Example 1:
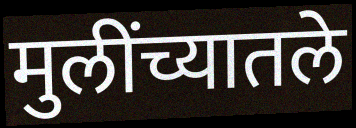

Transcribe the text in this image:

मुलींच्यातले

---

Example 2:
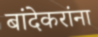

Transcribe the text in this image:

बांदेकरांना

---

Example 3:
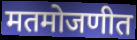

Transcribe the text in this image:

मतमोजणीत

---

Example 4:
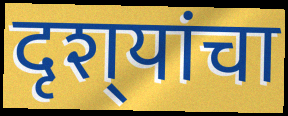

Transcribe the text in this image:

दृश्यांचा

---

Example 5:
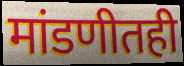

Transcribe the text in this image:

मांडणीतही